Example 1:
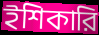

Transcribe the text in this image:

ইশিকারি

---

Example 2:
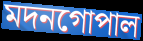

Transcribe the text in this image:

মদনগোপাল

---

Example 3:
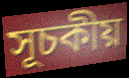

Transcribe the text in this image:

সূচকীয়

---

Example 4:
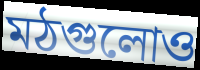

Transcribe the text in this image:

মঠগুলোও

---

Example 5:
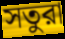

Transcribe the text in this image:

সতুরা